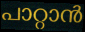
പാറ്റാൻ